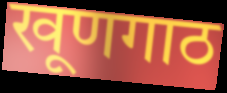
खूणगाठ